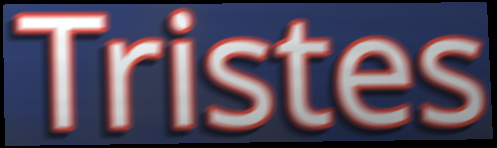
Tristes